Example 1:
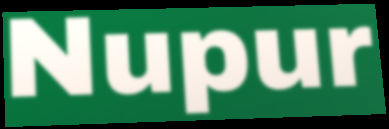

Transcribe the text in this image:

Nupur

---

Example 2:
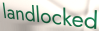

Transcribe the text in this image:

landlocked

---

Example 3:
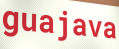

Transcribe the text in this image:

guajava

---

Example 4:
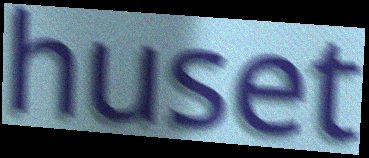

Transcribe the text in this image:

huset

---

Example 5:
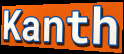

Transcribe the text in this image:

Kanth